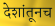
देशांतूनच